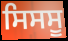
ਸਿਸਸੂ